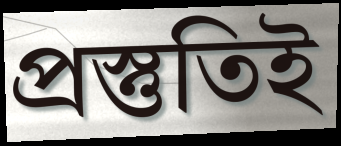
প্রস্তুতিই